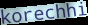
korechhi